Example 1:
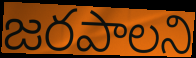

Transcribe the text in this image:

జరపాలని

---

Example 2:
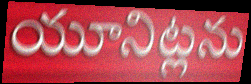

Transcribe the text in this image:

యూనిట్లను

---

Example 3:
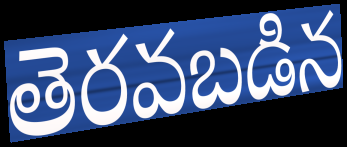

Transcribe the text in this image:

తెరవబడిన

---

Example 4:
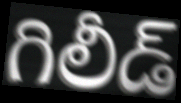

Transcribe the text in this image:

గిలీడ్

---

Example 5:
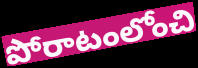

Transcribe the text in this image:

పోరాటంలోంచి